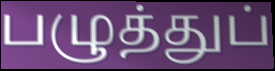
பழுத்துப்